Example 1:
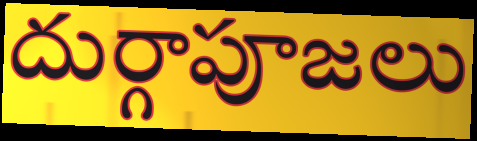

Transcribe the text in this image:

దుర్గాపూజలు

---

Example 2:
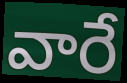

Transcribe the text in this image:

వారే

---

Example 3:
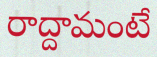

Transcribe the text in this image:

రాద్దామంటే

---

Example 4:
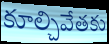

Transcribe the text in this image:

కూల్చివేతకు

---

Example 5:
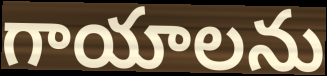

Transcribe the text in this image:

గాయాలను